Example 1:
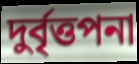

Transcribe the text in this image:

দুর্বৃত্তপনা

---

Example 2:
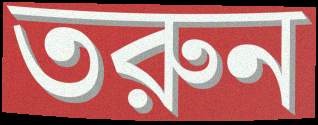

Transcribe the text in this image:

তরুন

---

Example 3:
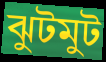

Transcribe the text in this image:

ঝুটমুট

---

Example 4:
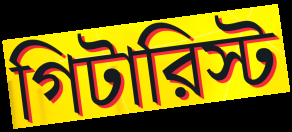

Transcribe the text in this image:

গিটারিস্ট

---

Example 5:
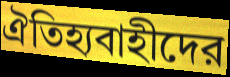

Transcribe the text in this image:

ঐতিহ্যবাহীদের